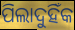
ପିଲାଦୁହିଁକ